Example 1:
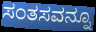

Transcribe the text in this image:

ಸಂತಸವನ್ನೂ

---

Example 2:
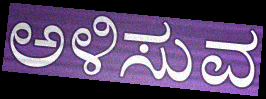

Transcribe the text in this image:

ಅಳಿಸುವ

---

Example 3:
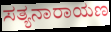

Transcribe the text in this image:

ಸತ್ಯನಾರಾಯಣ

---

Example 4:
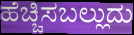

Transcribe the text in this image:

ಹೆಚ್ಚಿಸಬಲ್ಲುದು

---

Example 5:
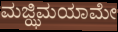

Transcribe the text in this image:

ಮಜ್ಝಿಮಯಾಮೇ